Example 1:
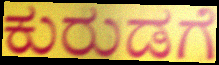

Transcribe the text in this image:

ಕುರುಡಗೆ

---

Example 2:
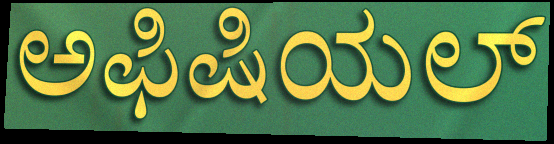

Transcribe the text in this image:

ಅಫಿಷಿಯಲ್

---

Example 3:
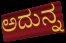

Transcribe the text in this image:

ಅದುನ್ನ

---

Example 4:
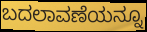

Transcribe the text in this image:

ಬದಲಾವಣೆಯನ್ನೂ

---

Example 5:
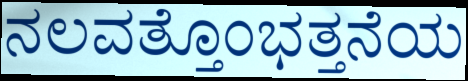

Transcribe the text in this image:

ನಲವತ್ತೊಂಭತ್ತನೆಯ